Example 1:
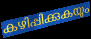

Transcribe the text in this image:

കഴിപ്പിക്കുകയും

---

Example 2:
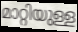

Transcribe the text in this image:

മാറ്റിയുള്ള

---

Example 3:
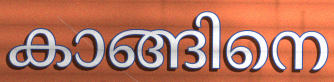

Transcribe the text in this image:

കാങ്ങിനെ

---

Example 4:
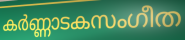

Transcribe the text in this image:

കർണ്ണാടകസംഗീത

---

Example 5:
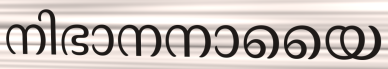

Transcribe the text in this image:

നിഭാനനായൈ